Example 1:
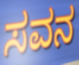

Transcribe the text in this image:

ಸವನ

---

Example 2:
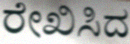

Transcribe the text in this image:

ರೇಖಿಸಿದ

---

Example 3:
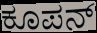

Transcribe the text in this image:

ಕೂಪನ್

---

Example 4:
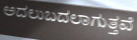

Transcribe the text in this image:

ಅದಲುಬದಲಾಗುತ್ತವೆ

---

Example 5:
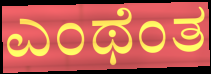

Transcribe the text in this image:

ಎಂಥೆಂತ